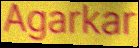
Agarkar